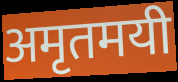
अमृतमयी